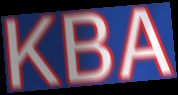
KBA